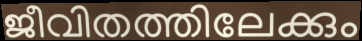
ജീവിതത്തിലേക്കും